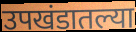
उपखंडातल्या